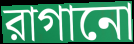
রাগানো